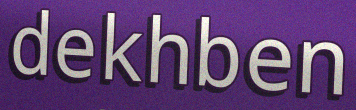
dekhben